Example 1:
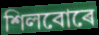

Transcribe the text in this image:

শিলবোৰে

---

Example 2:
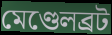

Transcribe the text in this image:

মেণ্ডেলব্ৰট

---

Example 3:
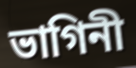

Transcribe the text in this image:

ভাগিনী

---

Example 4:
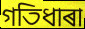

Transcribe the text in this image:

গতিধাৰা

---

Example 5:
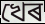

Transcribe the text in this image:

খেৰ